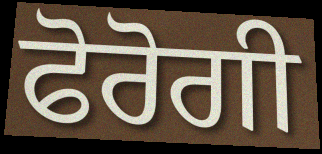
ਫੋਰੋਗੀ